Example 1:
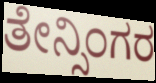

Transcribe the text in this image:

ತೇನ್ಸಿಂಗರ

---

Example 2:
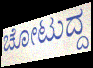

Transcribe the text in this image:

ಚೋಟುದ್ದ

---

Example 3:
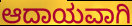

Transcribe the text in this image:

ಆದಾಯವಾಗಿ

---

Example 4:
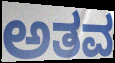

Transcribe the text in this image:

ಅತವ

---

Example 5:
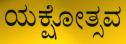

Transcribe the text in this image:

ಯಕ್ಷೋತ್ಸವ